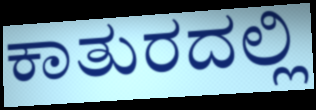
ಕಾತುರದಲ್ಲಿ